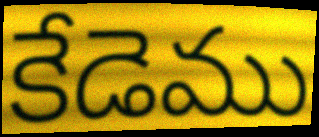
కేడెము